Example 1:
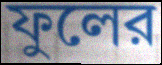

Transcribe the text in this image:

ফুলের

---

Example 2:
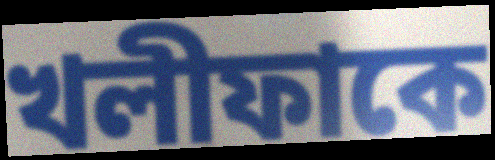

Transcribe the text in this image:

খলীফাকে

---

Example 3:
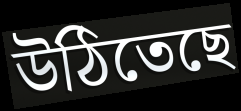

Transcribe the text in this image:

উঠিতেছে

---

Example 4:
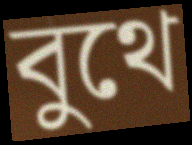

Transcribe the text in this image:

বুথে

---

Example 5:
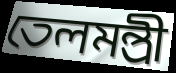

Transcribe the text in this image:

তেলমন্ত্রী